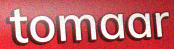
tomaar